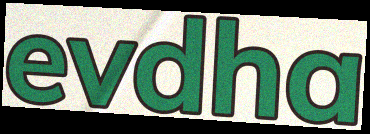
evdha